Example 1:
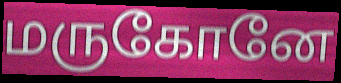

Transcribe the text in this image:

மருகோனே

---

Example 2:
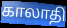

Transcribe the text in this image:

காலாதி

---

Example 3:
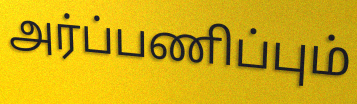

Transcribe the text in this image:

அர்ப்பணிப்பும்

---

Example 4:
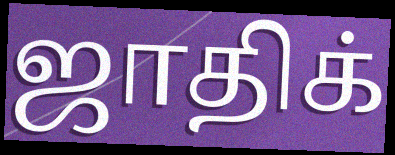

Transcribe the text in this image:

ஜாதிக்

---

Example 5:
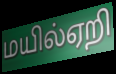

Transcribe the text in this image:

மயில்ஏறி